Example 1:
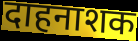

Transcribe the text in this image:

दाहनाशक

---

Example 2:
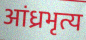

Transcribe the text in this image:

आंध्रभृत्य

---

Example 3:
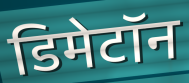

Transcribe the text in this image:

डिमेटॉन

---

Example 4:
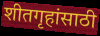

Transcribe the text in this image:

शीतगृहांसाठी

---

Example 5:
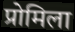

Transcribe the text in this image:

प्रोमिला